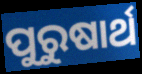
ପୁରୁଷାର୍ଥ